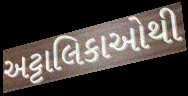
અટ્ટાલિકાઓથી